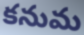
కనుమ